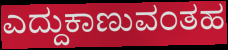
ಎದ್ದುಕಾಣುವಂತಹ